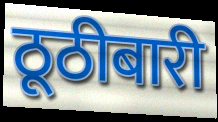
ठूठीबारी